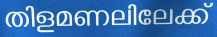
തിളമണലിലേക്ക്